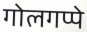
गोलगप्पे